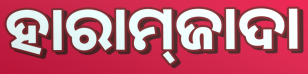
ହାରାମ୍‌ଜାଦା